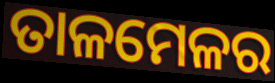
ତାଳମେଳର